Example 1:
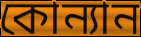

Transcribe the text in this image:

কোন্যান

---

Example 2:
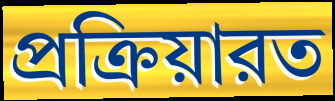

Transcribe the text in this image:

প্রক্রিয়ারত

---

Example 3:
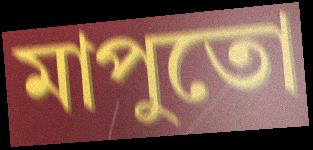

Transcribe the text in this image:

মাপুতো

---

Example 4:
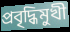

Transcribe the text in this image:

প্রবৃদ্ধিমুখী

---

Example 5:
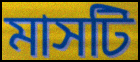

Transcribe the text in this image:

মাসটি